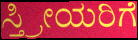
ಸ್ತ್ರೀಯರಿಗೆ